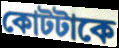
কোটটাকে